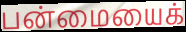
பன்மையைக்